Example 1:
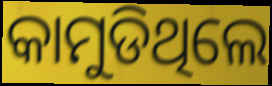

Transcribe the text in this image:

କାମୁଡିଥିଲେ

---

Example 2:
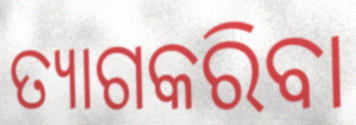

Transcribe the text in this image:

ତ୍ୟାଗକରିବା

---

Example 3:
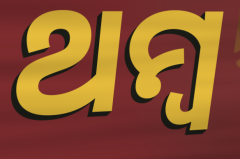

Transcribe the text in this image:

ଥମ୍ବ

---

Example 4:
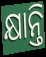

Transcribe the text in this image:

କ୍ଷାନ୍ତି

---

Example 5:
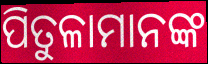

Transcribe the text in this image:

ପିତୁଳାମାନଙ୍କ